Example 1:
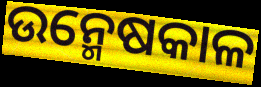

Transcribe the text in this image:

ଉନ୍ମେଷକାଳ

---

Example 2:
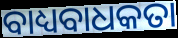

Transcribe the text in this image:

ବାଧ୍ୟବାଧକତା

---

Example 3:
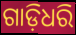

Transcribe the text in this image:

ଗାଡ଼ିଧରି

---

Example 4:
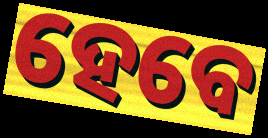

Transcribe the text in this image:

ହେବେ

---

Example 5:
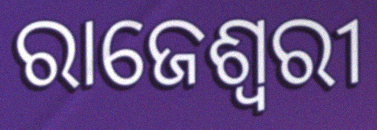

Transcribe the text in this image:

ରାଜେଶ୍ଵରୀ